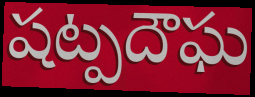
షట్పదౌఘ